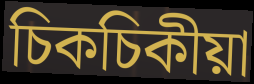
চিকচিকীয়া